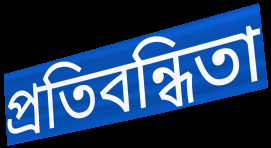
প্রতিবন্ধিতা